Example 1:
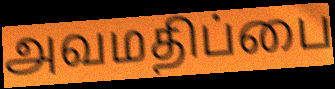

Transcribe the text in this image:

அவமதிப்பை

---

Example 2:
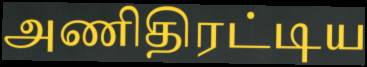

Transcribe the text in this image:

அணிதிரட்டிய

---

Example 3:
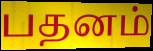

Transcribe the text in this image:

பதனம்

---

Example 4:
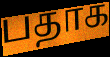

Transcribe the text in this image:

பதாக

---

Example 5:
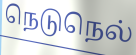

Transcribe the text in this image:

நெடுநெல்